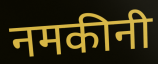
नमकीनी